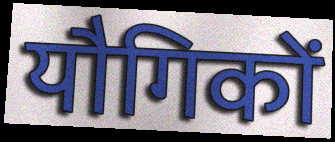
यौगिकों